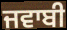
ਜਵਾਬੀ